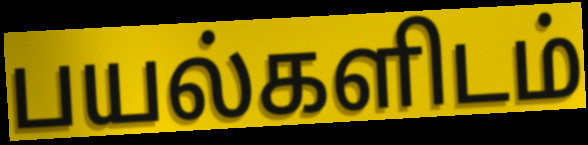
பயல்களிடம்